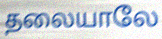
தலையாலே